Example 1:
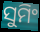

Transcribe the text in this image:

ସୁମିଂ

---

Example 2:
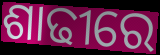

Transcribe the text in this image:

ଶାଢୀରେ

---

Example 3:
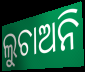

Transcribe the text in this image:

ଲୁଚାଅନି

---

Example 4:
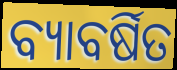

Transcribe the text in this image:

ବ୍ୟାବର୍ଷିତ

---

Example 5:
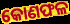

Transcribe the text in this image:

କୋଣଫଳ